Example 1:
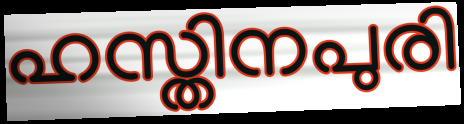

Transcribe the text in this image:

ഹസ്തിനപുരി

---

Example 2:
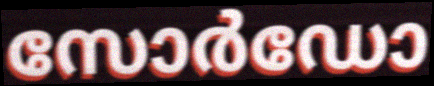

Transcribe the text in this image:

സോർഡോ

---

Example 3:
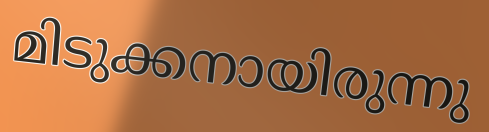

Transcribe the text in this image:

മിടുക്കനായിരുന്നു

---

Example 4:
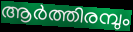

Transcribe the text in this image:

ആർത്തിരമ്പും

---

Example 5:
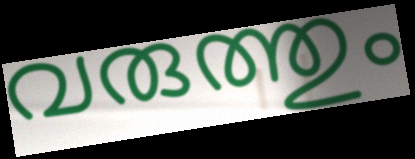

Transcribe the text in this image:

വരുത്തും